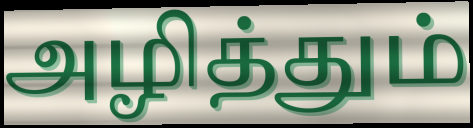
அழித்தும்